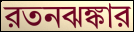
রতনঝঙ্কার